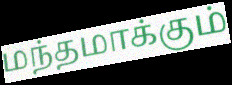
மந்தமாக்கும்